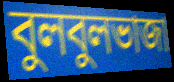
বুলবুলভাজা